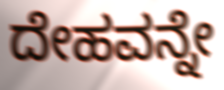
ದೇಹವನ್ನೇ